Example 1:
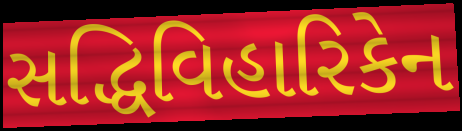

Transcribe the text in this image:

સદ્ધિવિહારિકેન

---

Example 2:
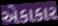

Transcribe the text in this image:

એકાકાર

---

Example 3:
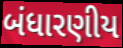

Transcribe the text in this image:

બંધારણીય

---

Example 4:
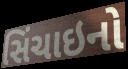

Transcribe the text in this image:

સિંચાઇનો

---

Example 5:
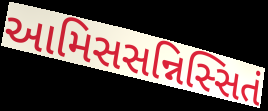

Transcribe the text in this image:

આમિસસન્નિસ્સિતં